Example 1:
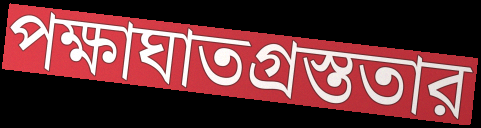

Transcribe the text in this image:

পক্ষাঘাতগ্রস্ততার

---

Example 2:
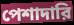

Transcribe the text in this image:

পেশাদারি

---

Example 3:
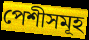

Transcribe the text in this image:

পেশীসমূহ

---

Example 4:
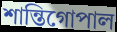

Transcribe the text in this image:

শান্তিগোপাল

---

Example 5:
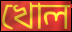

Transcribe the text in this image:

খোল